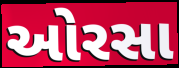
ઓરસા